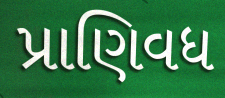
પ્રાણિવધ